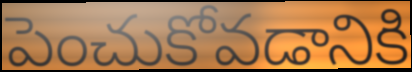
పెంచుకోవడానికి